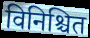
विनिश्चित